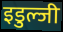
इडुल्जी